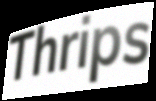
Thrips